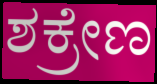
ಶಕ್ರೇಣ